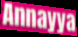
Annayya